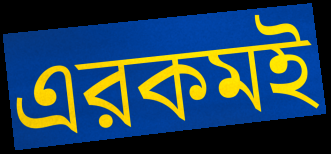
এরকমই